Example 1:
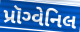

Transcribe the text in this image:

પ્રૉગ્વેનિલ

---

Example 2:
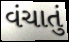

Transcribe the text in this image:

વંચાતું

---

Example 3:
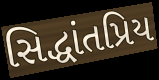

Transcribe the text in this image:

સિદ્ધાંતપ્રિય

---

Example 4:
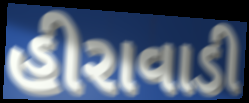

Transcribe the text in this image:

હીરાવાડી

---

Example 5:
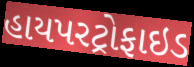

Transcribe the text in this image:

હાયપરટ્રોફાઇડ